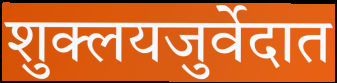
शुक्लयजुर्वेदात